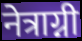
नेत्राग्नी